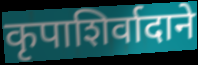
कृपाशिर्वादाने